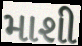
માશી